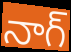
నాగ్